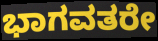
ಭಾಗವತರೇ